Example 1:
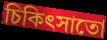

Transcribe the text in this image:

চিকিৎসাতো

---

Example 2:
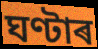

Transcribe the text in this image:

ঘণ্টাৰ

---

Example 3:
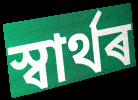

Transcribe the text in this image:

স্বাৰ্থৰ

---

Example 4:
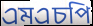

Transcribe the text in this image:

এমএচপি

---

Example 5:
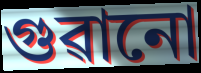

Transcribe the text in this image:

গুৱানো